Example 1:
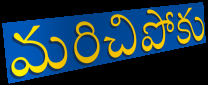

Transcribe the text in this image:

మరిచిపోకు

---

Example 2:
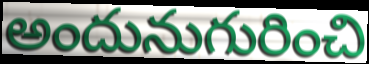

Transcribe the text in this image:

అందునుగురించి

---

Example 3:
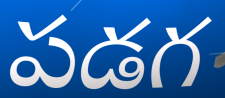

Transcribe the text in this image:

పడగ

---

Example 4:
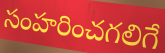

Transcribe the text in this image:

సంహరించగలిగే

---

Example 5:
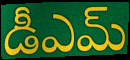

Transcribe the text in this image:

డీఎమ్